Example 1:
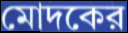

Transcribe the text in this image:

মোদকের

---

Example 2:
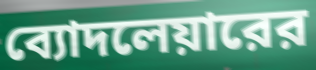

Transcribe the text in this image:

ব্যোদলেয়ারের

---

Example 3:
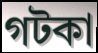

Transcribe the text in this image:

গটকা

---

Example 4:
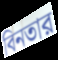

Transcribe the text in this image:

বিনতার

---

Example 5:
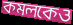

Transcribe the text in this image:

কমলকেও